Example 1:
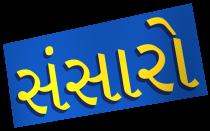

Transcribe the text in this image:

સંસારો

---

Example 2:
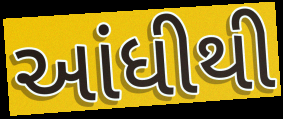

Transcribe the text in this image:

આંધીથી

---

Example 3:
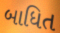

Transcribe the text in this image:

બાધિત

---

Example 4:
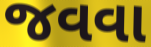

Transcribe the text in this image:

જવવા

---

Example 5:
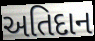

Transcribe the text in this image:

અતિદાન